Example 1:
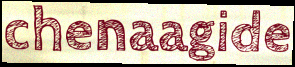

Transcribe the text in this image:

chenaagide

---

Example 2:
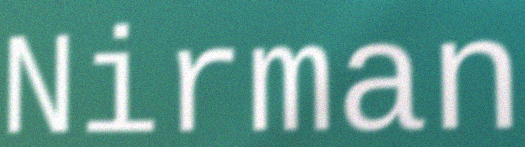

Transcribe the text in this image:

Nirman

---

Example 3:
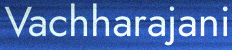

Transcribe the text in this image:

Vachharajani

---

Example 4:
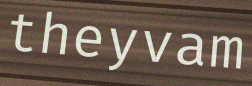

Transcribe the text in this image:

theyvam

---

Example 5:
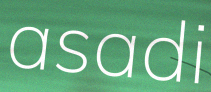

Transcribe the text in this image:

asadi